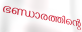
ഭണ്ഡാരത്തിന്റെ